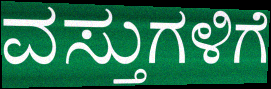
ವಸ್ತುಗಳಿಗೆ